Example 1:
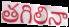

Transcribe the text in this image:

తగిలినా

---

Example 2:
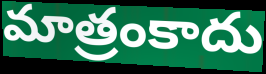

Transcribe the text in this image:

మాత్రంకాదు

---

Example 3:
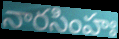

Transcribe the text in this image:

నారసింహః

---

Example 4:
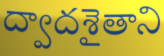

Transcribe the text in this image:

ద్వాదశైతాని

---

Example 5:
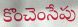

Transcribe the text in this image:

కొంచెంసేపు